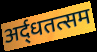
अर्द्धतत्सम